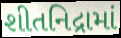
શીતનિદ્રામાં